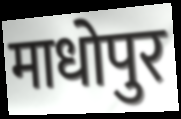
माधोपुर